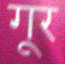
गूर